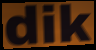
dik